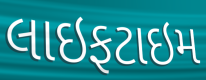
લાઇફટાઇમ